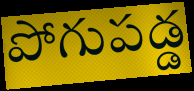
పోగుపడ్డ